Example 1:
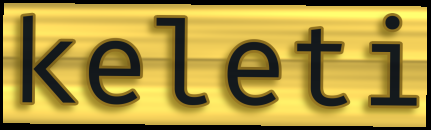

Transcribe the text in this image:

keleti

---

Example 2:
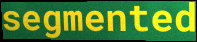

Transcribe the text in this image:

segmented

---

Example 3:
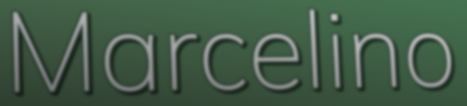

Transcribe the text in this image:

Marcelino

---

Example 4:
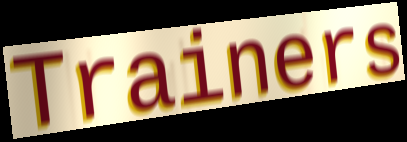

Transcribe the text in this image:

Trainers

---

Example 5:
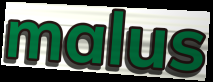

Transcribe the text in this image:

malus